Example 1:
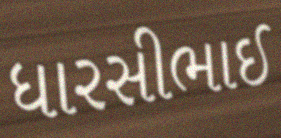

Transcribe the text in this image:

ધારસીભાઈ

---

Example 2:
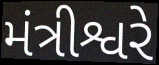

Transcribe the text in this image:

મંત્રીશ્વરે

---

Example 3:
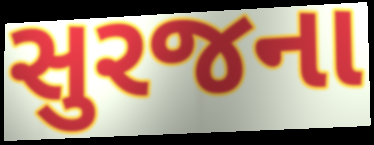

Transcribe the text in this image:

સુરજના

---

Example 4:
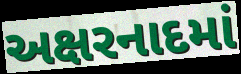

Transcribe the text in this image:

અક્ષરનાદમાં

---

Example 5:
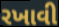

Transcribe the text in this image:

રખાવી